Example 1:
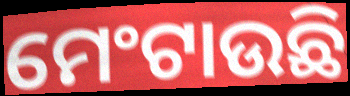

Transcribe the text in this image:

ମେଂଟାଉଛି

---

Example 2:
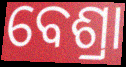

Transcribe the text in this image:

ବେଶ୍ରା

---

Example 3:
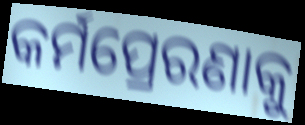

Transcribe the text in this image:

କର୍ମପ୍ରେରଣାକୁ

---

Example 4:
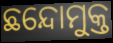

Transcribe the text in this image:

ଛନ୍ଦୋମୁକ୍ତ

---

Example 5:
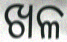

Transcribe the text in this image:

ଖଳ